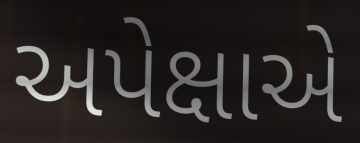
અપેક્ષાએ